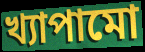
খ্যাপামো